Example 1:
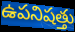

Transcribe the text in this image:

ఉపనిషత్తు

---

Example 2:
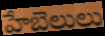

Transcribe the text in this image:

హేబెలులు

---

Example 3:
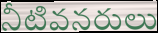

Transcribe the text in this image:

నీటివనరులు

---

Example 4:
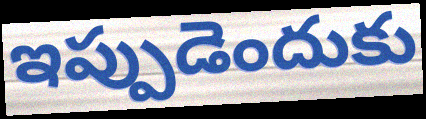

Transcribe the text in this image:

ఇప్పుడెందుకు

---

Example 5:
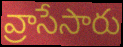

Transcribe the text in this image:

వ్రాసేసారు